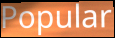
Popular